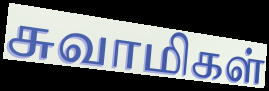
சுவாமிகள்